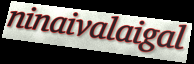
ninaivalaigal